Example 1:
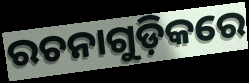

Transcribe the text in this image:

ରଚନାଗୁଡ଼ିକରେ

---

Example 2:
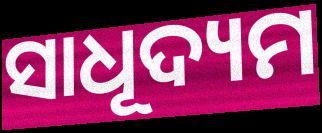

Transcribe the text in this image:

ସାଧୂଦ୍ୟମ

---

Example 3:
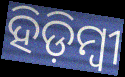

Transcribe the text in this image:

ହିଡ଼ିମ୍ବୀ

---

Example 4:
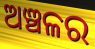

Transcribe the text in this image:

ଅଞ୍ଚଳର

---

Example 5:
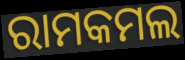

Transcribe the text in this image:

ରାମକମଲ